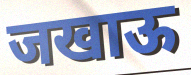
जखाऊ